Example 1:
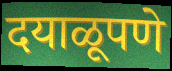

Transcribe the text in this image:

दयाळूपणे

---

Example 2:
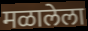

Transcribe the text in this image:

मळालेला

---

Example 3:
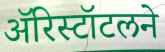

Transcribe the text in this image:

ॲरिस्टॉटलने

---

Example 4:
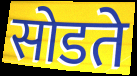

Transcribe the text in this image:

सोडते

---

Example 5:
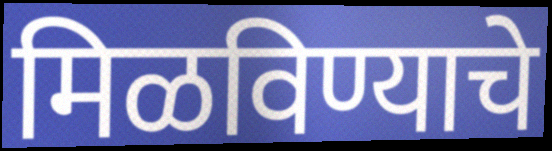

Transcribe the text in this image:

मिळविण्याचे